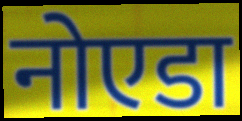
नोएडा